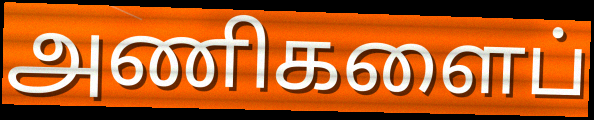
அணிகளைப்